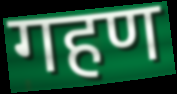
गहण